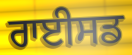
ਰਾਈਸਡ